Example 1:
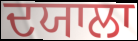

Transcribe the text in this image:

ਦਯਾਲਾ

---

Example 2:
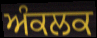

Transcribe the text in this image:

ਅੰਕਲਕ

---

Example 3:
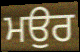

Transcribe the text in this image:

ਮਉਰ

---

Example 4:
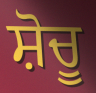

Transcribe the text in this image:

ਸ਼ੋਚੂ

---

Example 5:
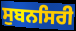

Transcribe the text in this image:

ਸੁਬਨਸਿਰੀ